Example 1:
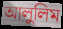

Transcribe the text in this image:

আলুলিম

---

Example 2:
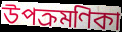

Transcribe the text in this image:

উপক্রমণিকা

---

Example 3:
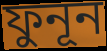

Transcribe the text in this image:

ফুনূন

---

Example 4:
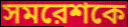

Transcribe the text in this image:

সমরেশকে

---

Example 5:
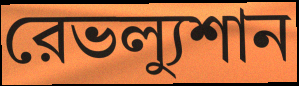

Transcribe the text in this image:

রেভল্যুশান